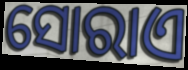
ସୋରାଏ